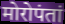
मोरोपंतां